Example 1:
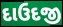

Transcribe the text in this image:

દાઉદજી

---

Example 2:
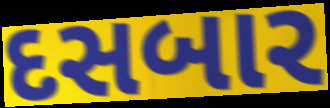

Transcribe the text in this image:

દસબાર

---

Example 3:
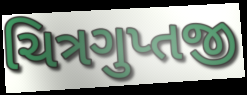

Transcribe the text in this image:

ચિત્રગુપ્તજી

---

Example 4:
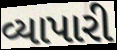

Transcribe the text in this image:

વ્યાપારી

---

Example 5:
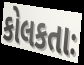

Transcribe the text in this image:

કોલકતાઃ